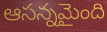
ఆసన్నమైంది